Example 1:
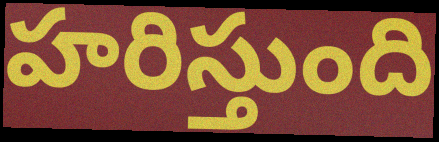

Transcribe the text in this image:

హరిస్తుంది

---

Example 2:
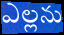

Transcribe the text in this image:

ఎల్లను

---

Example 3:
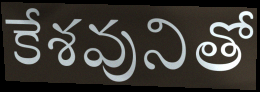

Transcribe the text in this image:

కేశవునితో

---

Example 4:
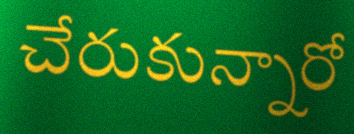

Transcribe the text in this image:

చేరుకున్నారో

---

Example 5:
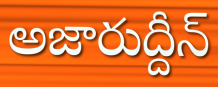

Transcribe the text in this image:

అజారుద్దీన్